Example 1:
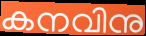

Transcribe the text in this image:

കനവിനു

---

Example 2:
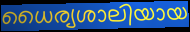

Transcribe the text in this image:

ധൈര്യശാലിയായ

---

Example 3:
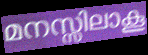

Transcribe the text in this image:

മനസ്സിലാകൂ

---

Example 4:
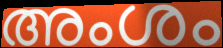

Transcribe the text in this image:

അംശം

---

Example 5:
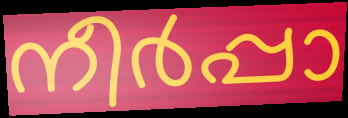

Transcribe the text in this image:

നീർപ്പാ